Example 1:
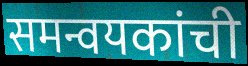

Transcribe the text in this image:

समन्वयकांची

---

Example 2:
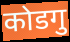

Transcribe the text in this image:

कोडगु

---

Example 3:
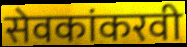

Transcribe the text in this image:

सेवकांकरवी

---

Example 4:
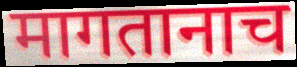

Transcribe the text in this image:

मागतानाच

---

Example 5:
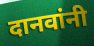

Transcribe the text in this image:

दानवांनी